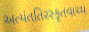
અત્યંતતિરસ્કૃતવાચ્ય